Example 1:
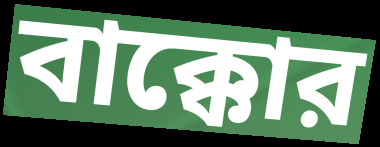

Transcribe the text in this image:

বাক্কোর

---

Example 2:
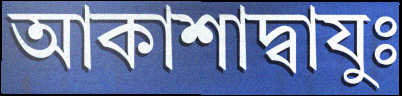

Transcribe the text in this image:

আকাশাদ্বাযুঃ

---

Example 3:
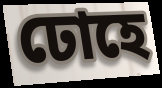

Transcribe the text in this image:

ঢোহে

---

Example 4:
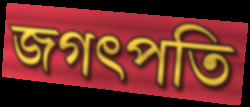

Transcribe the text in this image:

জগৎপতি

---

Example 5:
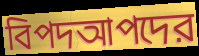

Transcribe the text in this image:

বিপদআপদের